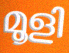
മൂളി